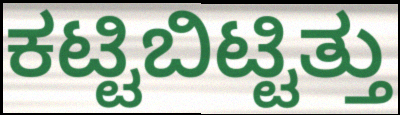
ಕಟ್ಟಿಬಿಟ್ಟಿತ್ತು